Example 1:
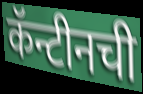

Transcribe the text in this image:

कॅन्टीनची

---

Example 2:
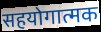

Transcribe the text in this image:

सहयोगात्मक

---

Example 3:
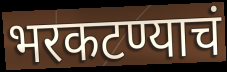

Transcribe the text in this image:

भरकटण्याचं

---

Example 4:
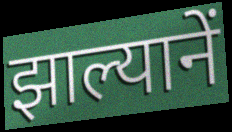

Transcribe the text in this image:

झाल्यानें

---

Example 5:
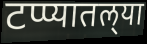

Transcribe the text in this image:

टप्प्यातल्या